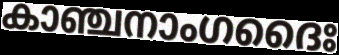
കാഞ്ചനാംഗദൈഃ